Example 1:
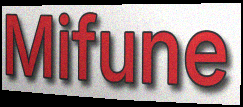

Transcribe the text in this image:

Mifune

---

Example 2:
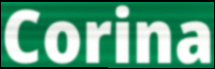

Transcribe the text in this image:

Corina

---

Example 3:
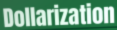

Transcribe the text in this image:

Dollarization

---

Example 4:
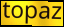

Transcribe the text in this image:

topaz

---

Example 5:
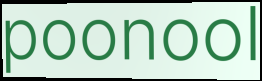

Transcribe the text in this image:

poonool